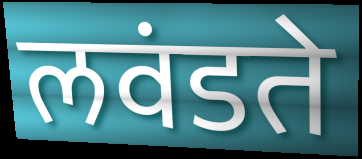
लवंडते